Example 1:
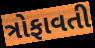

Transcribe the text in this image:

ત્રોફાવતી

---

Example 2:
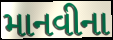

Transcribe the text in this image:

માનવીના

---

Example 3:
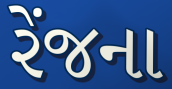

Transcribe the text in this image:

રેંજના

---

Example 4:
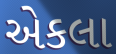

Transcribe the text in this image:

એકલા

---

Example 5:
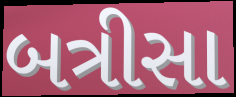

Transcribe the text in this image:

બત્રીસા